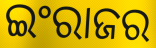
ଇଂରାଜର